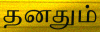
தனதும்